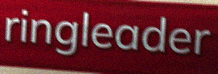
ringleader